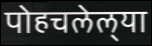
पोहचलेल्या